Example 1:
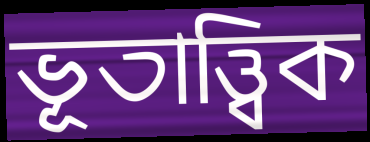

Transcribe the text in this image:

ভূতাত্ত্বিক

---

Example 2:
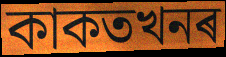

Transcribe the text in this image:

কাকতখনৰ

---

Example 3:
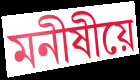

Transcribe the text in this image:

মনীষীয়ে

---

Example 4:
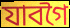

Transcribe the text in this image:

যাবগৈ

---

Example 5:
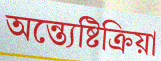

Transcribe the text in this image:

অন্ত্যেষ্টিক্ৰিয়া